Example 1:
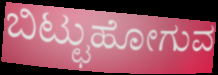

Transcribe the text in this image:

ಬಿಟ್ಟುಹೋಗುವ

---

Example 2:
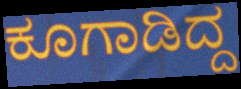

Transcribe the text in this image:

ಕೂಗಾಡಿದ್ದ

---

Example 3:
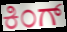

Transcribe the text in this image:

ಕಿಂಗ್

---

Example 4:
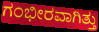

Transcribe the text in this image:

ಗಂಭೀರವಾಗಿತ್ತು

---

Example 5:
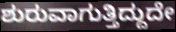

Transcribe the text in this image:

ಶುರುವಾಗುತ್ತಿದ್ದುದೇ